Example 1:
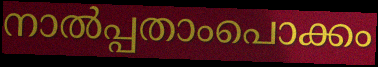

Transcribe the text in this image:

നാൽപ്പതാംപൊക്കം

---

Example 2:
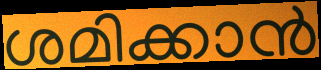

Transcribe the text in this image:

ശമിക്കാൻ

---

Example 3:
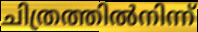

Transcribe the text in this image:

ചിത്രത്തിൽനിന്ന്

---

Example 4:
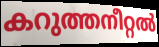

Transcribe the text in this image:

കറുത്തനീറ്റൽ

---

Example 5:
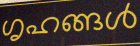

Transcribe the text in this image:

ഗൃഹങ്ങൾ